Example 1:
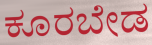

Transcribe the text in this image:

ಕೂರಬೇಡ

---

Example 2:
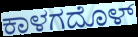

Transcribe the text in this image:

ಕಾಳಗದೊಳ್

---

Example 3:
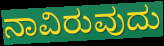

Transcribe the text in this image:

ನಾವಿರುವುದು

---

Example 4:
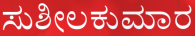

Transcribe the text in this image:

ಸುಶೀಲಕುಮಾರ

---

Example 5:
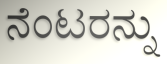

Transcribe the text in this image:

ನೆಂಟರನ್ನು